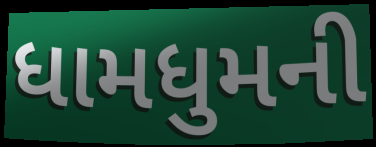
ધામધુમની